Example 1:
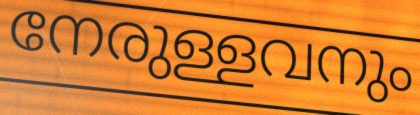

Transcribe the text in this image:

നേരുള്ളവനും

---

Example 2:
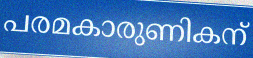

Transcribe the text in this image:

പരമകാരുണികന്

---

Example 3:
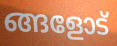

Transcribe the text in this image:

ങ്ങളോട്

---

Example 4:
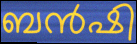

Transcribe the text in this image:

ബൻഷി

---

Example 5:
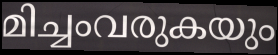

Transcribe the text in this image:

മിച്ചംവരുകയും